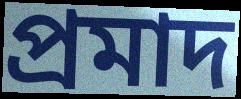
প্রমাদ